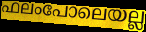
ഫലംപോലെയല്ല